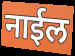
नाईल